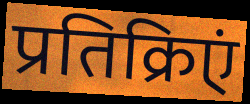
प्रतिक्रिएं